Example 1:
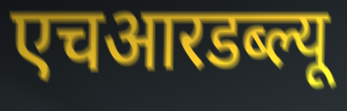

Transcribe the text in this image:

एचआरडब्ल्यू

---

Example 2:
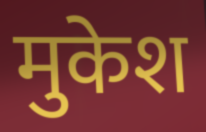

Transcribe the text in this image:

मुकेश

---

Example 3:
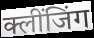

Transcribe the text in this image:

क्लींजिंग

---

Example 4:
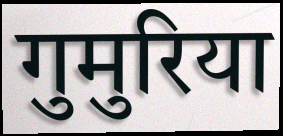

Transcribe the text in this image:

गुमुरिया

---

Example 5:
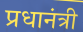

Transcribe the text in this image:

प्रधानंत्री